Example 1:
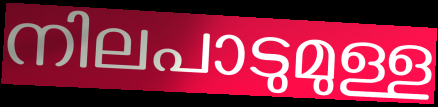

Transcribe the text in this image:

നിലപാടുമുള്ള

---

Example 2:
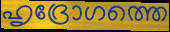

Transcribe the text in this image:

ഹൃദ്രോഗത്തെ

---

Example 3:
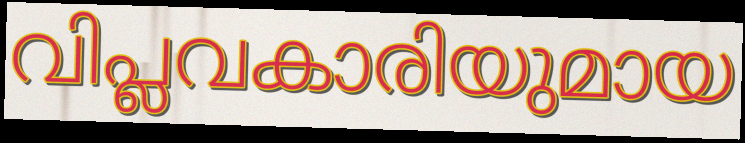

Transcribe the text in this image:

വിപ്ലവകാരിയുമായ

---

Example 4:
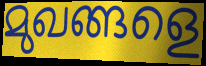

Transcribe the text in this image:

മുഖങ്ങളെ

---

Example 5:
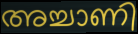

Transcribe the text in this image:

അച്ചാണി